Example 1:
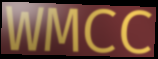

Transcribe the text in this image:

WMCC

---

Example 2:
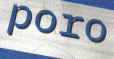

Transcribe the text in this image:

poro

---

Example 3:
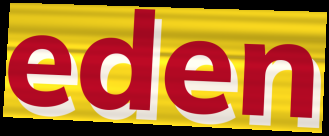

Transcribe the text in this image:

eden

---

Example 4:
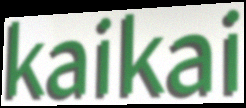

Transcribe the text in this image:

kaikai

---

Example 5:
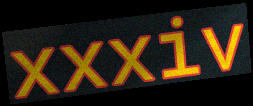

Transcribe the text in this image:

xxxiv